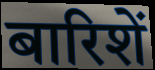
बारिशें